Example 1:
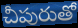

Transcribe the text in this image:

చీపురుతో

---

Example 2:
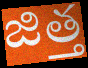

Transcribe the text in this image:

జిత్త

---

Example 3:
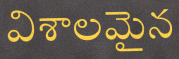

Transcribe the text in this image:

విశాలమైన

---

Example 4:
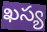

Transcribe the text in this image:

ఖస్య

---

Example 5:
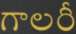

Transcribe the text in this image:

గాలరీ